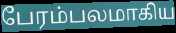
பேரம்பலமாகிய